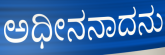
ಅಧೀನನಾದನು